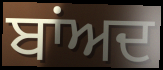
ਬਾਂਅਦ